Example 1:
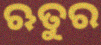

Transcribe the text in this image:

ଋତୁର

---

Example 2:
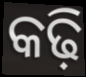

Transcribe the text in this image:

କଢ଼ି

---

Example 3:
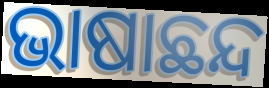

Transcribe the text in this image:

ଭାଷାଛନ୍ଦ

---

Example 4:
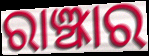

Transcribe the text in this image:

ରାଞ୍ଝାର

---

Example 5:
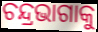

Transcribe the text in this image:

ଚନ୍ଦ୍ରଭାଗାକୁ